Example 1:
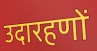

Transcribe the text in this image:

उदारहणों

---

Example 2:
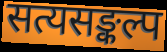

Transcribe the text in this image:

सत्यसङ्कल्प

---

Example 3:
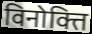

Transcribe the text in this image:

विनोक्ति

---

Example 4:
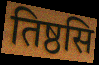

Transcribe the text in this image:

तिष्ठसि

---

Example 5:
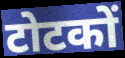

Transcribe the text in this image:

टोटकों